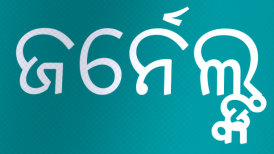
ଜର୍ନେଲ୍ଙ୍କ